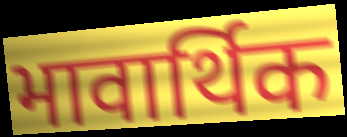
भावार्थिक